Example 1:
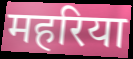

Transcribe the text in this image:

महरिया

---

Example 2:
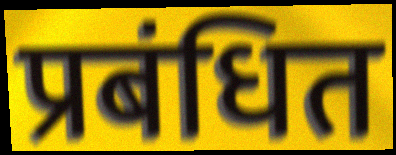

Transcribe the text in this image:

प्रबंधित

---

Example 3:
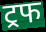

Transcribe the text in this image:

ट्रफ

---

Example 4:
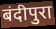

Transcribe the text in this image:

बंदीपुरा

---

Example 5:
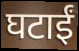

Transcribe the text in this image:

घटाईं